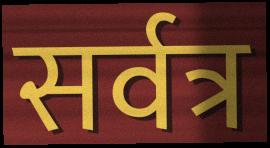
सर्वत्र